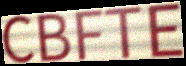
CBFTE